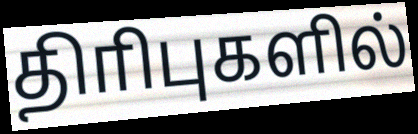
திரிபுகளில்